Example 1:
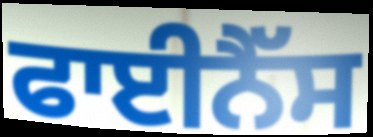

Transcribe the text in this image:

ਫਾਈਨੈੱਸ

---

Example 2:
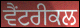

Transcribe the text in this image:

ਵੈਂਟਰੀਕਲ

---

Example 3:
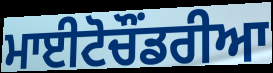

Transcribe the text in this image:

ਮਾਈਟੋਚੌਂਡਰੀਆ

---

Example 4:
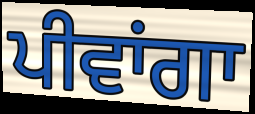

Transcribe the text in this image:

ਪੀਵਾਂਗਾ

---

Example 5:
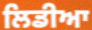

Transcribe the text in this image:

ਲਿਡੀਆ